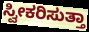
ಸ್ವೀಕರಿಸುತ್ತಾ